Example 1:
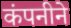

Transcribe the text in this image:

कंपनीने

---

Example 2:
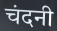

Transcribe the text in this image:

चंदनी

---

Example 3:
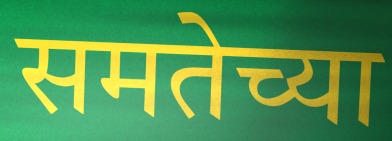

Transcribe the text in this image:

समतेच्या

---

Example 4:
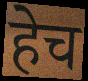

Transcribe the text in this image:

हेच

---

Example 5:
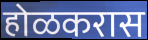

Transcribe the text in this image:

होळकरास